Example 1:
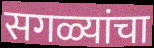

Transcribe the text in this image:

सगळ्यांचा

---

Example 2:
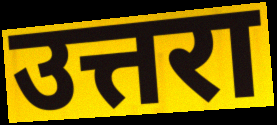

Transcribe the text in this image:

उत्तरा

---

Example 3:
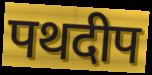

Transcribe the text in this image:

पथदीप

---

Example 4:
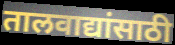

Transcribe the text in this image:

तालवाद्यांसाठी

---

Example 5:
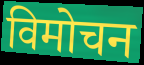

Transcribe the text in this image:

विमोचन